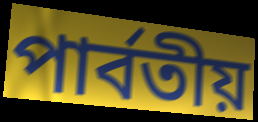
পার্বতীয়